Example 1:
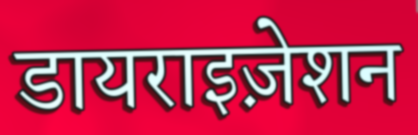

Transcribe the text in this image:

डायराइज़ेशन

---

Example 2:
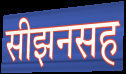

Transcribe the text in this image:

सीझनसह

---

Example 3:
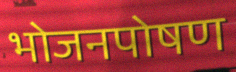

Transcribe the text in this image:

भोजनपोषण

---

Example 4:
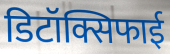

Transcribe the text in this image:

डिटॉक्सिफाई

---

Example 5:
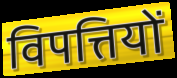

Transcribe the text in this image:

विपत्तियों